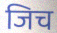
जिच